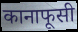
कानाफूसी